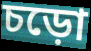
চড়ো